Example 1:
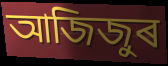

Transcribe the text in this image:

আজিজুৰ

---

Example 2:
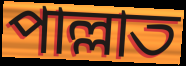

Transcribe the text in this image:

পাল্লাত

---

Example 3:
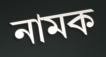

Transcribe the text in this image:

নামক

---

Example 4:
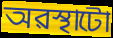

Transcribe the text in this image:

অৱস্থাটো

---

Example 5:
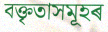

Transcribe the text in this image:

বক্তৃতাসমূহৰ